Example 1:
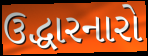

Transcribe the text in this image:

ઉદ્ધારનારો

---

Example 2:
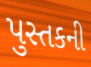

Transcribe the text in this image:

પુસ્તકની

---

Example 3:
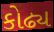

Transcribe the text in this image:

કોઢ્ય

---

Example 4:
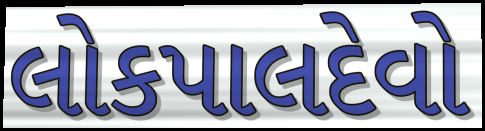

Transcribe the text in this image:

લોકપાલદેવો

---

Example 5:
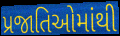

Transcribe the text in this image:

પ્રજાતિઓમાંથી